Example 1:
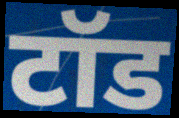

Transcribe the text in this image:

टॉड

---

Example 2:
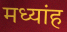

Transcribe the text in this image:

मध्यांह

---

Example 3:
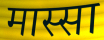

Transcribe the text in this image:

मास्सा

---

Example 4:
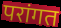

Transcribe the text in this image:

परांगत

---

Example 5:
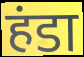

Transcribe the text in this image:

हंडा